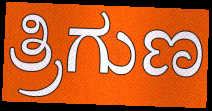
ತ್ರಿಗುಣ